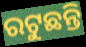
ରଟୁଛନ୍ତି